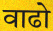
वाढो